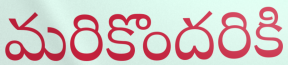
మరికొందరికి